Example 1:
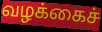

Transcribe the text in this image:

வழக்கைச்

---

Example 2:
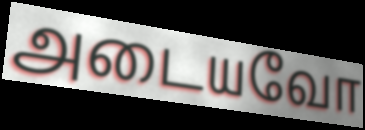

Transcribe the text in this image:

அடையவோ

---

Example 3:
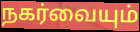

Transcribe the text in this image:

நகர்வையும்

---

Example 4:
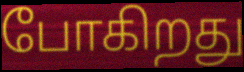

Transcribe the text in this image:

போகிறது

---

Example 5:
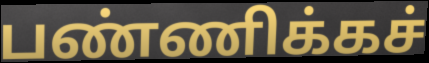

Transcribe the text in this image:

பண்ணிக்கச்